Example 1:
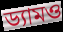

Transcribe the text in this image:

ড্যামও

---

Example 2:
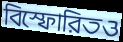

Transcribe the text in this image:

বিস্ফোরিতও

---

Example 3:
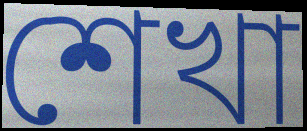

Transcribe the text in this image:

শেখা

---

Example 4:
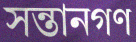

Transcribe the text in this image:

সন্তানগণ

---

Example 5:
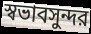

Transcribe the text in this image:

স্বভাবসুন্দর